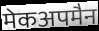
मेकअपमैन